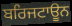
ਬਰਿਜਟਾਊਨ